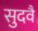
सुदवै